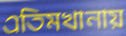
এতিমখানায়